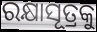
ରକ୍ଷାସୂତ୍ରକୁ